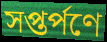
সপ্তর্পণে